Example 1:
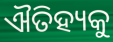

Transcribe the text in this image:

ଐତିହ୍ୟକୁ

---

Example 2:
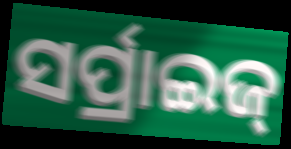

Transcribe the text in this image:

ସର୍ପ୍ରାଇଜ୍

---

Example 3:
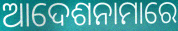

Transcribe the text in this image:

ଆଦେଶନାମାରେ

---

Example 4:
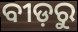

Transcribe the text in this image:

ବୀଡ଼ରୁ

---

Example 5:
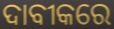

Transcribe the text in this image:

ଦାବୀକରେ